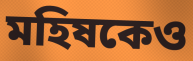
মহিষকেও